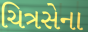
ચિત્રસેના